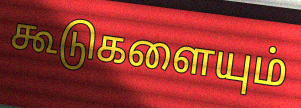
கூடுகளையும்